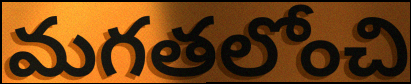
మగతలోంచి